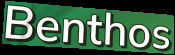
Benthos